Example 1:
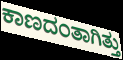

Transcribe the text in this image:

ಕಾಣದಂತಾಗಿತ್ತು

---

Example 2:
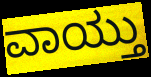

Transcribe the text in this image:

ವಾಯ್ತು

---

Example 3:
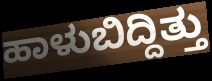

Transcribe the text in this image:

ಹಾಳುಬಿದ್ದಿತ್ತು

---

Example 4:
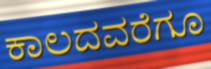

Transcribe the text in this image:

ಕಾಲದವರೆಗೂ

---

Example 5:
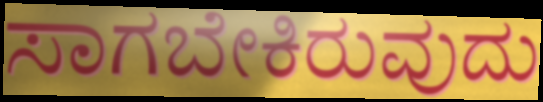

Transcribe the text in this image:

ಸಾಗಬೇಕಿರುವುದು